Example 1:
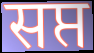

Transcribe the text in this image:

सप्त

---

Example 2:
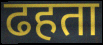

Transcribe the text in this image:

ढहता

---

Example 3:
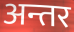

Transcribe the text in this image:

अन्‍तर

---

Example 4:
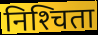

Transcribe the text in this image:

निश्चिता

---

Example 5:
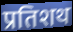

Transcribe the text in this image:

प्रतिशथ